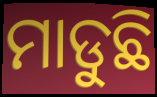
ମାଡୁଛି